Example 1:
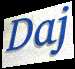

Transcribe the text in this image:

Daj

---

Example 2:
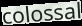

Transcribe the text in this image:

colossal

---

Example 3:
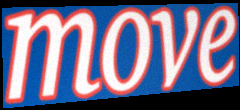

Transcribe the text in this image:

move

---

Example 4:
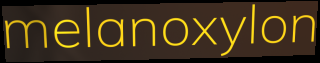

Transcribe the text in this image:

melanoxylon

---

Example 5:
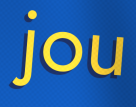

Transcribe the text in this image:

jou